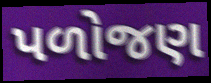
પળોજણ